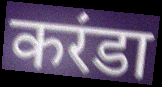
करंडा